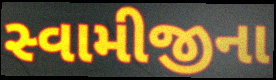
સ્વામીજીના